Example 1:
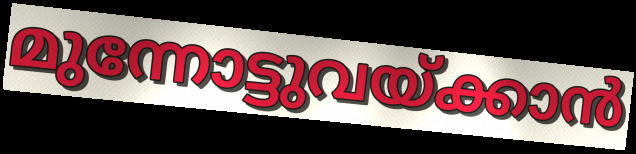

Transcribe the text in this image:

മുന്നോട്ടുവയ്ക്കാൻ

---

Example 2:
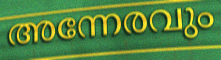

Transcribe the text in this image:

അന്നേരവും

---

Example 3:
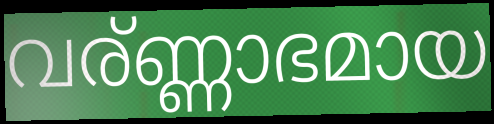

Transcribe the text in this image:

വര്ണ്ണാഭമായ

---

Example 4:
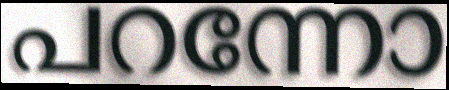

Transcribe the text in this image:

പറന്നോ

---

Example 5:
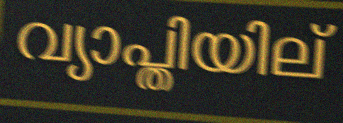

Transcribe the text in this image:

വ്യാപ്തിയില്